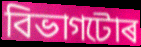
বিভাগটোৰ